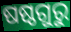
ଷଷ୍ଠଗୁରୁ